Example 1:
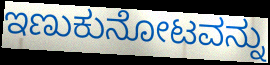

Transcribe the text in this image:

ಇಣುಕುನೋಟವನ್ನು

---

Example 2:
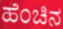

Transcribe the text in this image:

ಹೆಂಚಿನ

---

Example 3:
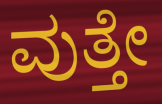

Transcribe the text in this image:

ವುತ್ತೇ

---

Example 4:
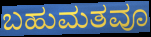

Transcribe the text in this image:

ಬಹುಮತವೂ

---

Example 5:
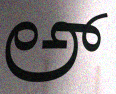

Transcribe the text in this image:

ಅ್